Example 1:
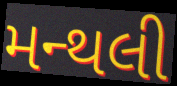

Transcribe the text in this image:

મન્થલી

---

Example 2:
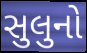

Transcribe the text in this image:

સુલુનો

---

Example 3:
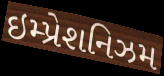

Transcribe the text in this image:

ઇમ્પ્રેશનિઝમ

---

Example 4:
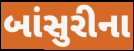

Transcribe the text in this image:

બાંસુરીના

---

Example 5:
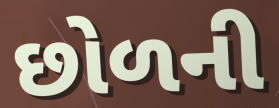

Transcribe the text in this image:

છોળની